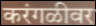
करंगळीवर